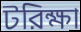
টরিক্ষা